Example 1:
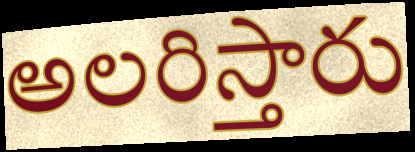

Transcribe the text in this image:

అలరిస్తారు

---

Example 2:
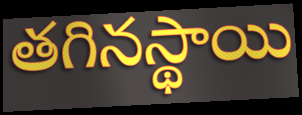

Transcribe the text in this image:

తగినస్థాయి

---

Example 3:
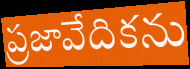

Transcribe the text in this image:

ప్రజావేదికను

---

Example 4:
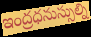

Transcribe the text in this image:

ఇంద్రధనుస్సుల్ని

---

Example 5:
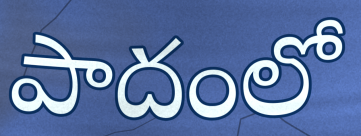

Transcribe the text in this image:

పాదంలో